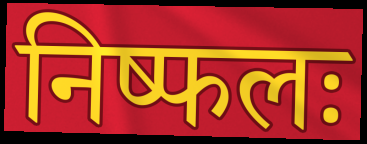
निष्फलः